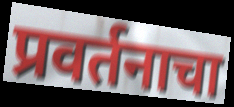
प्रवर्तनाचा